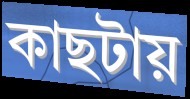
কাছটায়